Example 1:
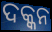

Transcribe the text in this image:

ଦକ୍କନ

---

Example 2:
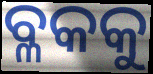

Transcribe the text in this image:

ବ୍ଳକକୁ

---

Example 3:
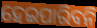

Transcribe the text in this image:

ହେଇପାରିବନି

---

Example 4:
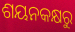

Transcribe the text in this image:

ଶୟନକକ୍ଷରୁ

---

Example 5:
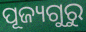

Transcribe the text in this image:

ପୂଜ୍ୟଗୁରୁ